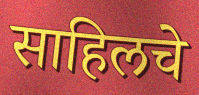
साहिलचे